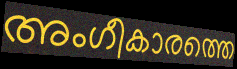
അംഗീകാരത്തെ